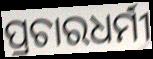
ପ୍ରଚାରଧର୍ମୀ